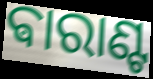
ଵାରାଣ୍ଟ